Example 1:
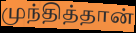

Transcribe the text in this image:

முந்தித்தான்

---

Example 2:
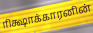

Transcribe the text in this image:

ரிக்ஷாக்காரனின்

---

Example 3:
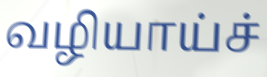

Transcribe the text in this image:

வழியாய்ச்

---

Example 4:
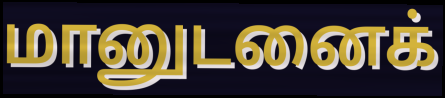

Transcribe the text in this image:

மானுடனைக்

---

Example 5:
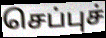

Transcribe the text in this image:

செப்புச்